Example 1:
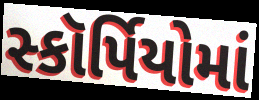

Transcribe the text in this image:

સ્કૉર્પિયોમાં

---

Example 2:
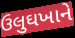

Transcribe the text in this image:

ઉલુઘખાને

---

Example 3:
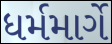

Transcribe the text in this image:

ધર્મમાર્ગે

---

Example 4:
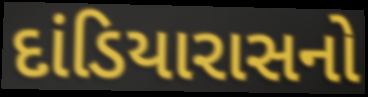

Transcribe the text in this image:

દાંડિયારાસનો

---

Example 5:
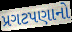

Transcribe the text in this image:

પ્રગટપણાનો